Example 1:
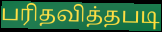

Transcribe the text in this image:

பரிதவித்தபடி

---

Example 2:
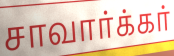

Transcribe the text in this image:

சாவார்க்கர்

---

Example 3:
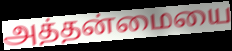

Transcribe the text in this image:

அத்தன்மையை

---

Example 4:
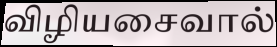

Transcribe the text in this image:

விழியசைவால்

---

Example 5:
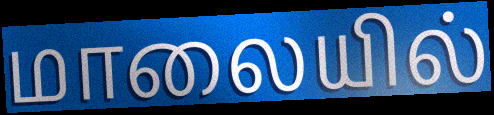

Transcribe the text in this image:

மாலையில்